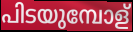
പിടയുമ്പോള്